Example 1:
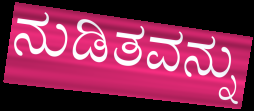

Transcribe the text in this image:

ನುಡಿತವನ್ನು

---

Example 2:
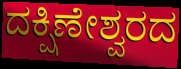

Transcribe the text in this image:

ದಕ್ಷಿಣೇಶ್ವರದ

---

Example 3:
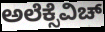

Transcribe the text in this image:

ಅಲೆಕ್ಸೆವಿಚ್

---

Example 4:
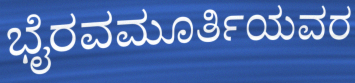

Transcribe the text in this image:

ಭೈರವಮೂರ್ತಿಯವರ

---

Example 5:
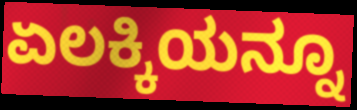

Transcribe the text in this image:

ಏಲಕ್ಕಿಯನ್ನೂ